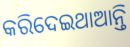
କରିଦେଇଥାଆନ୍ତି